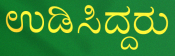
ಉಡಿಸಿದ್ದರು